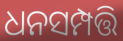
ଧନସମ୍ପତ୍ତି